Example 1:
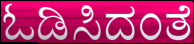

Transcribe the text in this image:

ಓಡಿಸಿದಂತೆ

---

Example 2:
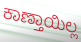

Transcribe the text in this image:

ಕಾಣ್ತಾಯಿಲ್ಲ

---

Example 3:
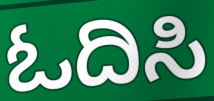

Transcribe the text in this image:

ಓದಿಸಿ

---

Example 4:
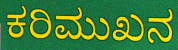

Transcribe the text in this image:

ಕರಿಮುಖನ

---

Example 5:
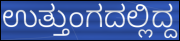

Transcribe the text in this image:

ಉತ್ತುಂಗದಲ್ಲಿದ್ದ